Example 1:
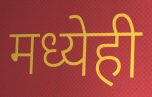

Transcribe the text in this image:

मध्येही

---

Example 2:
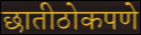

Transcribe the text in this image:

छातीठोकपणे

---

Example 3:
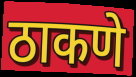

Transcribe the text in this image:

ठाकणे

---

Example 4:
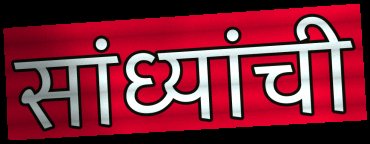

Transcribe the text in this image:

सांध्यांची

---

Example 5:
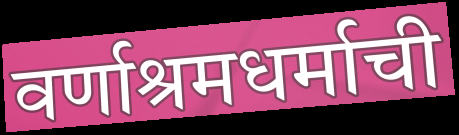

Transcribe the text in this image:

वर्णाश्रमधर्माची